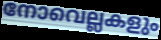
നോവെല്ലകളും